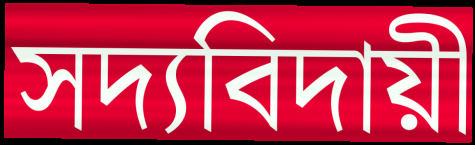
সদ্যবিদায়ী